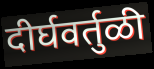
दीर्घवर्तुळी